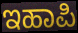
ಇಹಾಪಿ